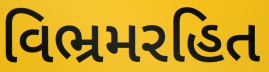
વિભ્રમરહિત